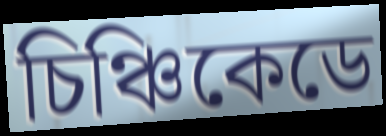
চিঞ্চিকেডে